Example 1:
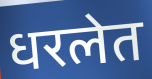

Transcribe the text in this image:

धरलेत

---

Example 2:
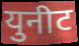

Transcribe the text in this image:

युनीट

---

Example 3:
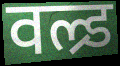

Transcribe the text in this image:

वल्र्ड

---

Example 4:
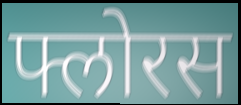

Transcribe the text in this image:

फ्लोरस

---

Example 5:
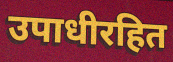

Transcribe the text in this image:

उपाधीरहित